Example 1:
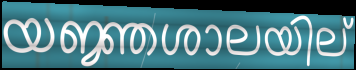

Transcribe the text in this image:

യജ്ഞശാലയില്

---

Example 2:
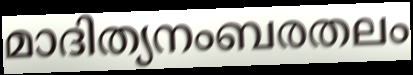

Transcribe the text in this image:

മാദിത്യനംബരതലം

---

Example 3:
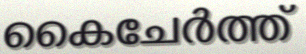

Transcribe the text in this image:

കൈചേർത്ത്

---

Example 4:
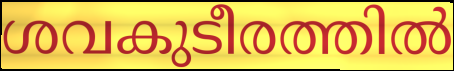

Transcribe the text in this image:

ശവകുടീരത്തിൽ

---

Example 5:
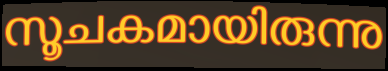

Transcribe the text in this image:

സൂചകമായിരുന്നു